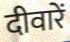
दीवारें